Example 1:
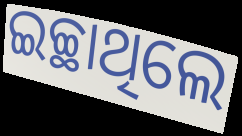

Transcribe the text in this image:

ଇଚ୍ଛାଥିଲେ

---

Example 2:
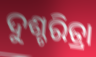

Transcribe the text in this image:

ଦୁଶ୍ଚରିତ୍ରା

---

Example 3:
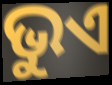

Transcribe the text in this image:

ଭୁଏ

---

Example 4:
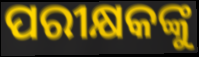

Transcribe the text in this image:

ପରୀକ୍ଷକଙ୍କୁ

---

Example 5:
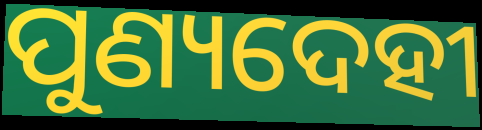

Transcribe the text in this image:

ପୁଣ୍ୟଦେହୀ